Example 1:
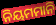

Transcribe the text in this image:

ନିୟମମାନି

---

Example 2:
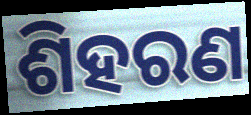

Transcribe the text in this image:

ଶିହରଣ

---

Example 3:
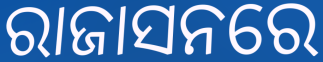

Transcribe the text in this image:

ରାଜାସନରେ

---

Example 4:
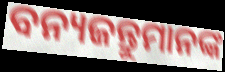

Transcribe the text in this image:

ବନ୍ୟଜନ୍ତୁମାନଙ୍କ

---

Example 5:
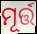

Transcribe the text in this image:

ମୂର୍ତ୍ତ